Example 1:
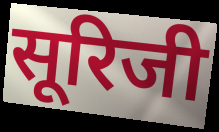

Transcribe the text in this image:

सूरिजी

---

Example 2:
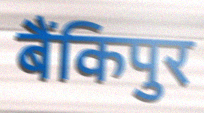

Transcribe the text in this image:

बैंकिपुर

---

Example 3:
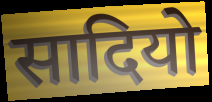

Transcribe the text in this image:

सादियो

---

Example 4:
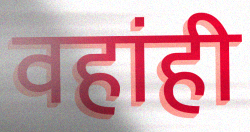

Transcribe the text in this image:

वहांही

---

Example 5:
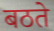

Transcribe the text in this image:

बठते